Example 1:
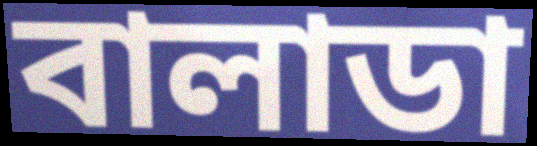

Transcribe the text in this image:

বালাডা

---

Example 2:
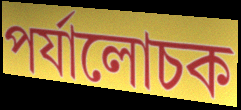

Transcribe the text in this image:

পর্যালোচক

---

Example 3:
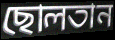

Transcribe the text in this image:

ছোলতান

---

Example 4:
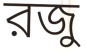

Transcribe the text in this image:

রজু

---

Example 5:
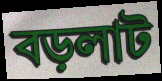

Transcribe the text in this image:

বড়লাট